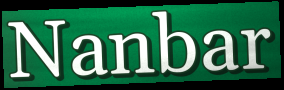
Nanbar